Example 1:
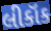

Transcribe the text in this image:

લીકૉક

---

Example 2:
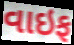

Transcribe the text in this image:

વાઇફ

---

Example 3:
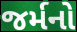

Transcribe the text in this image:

જર્મનો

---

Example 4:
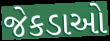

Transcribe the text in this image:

જેકડાઓ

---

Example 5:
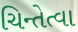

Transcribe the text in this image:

ચિન્તેત્વા